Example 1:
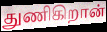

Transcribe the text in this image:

துணிகிறான்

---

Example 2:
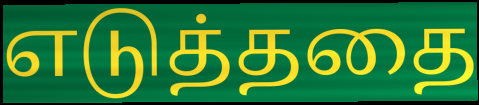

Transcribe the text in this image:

எடுத்ததை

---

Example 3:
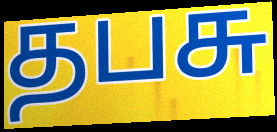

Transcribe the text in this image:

தபசு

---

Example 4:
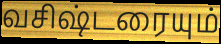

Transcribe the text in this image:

வசிஷ்டரையும்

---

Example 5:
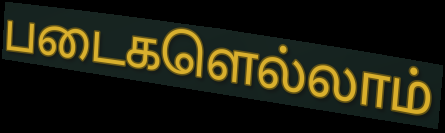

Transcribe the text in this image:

படைகளெல்லாம்